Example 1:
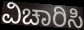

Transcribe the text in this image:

ವಿಚಾರಿಸಿ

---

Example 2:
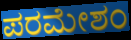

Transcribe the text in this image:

ಪರಮೇಶಂ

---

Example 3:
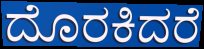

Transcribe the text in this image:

ದೊರಕಿದರೆ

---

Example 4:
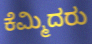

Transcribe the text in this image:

ಕೆಮ್ಮಿದರು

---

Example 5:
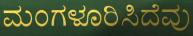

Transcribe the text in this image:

ಮಂಗಳೂರಿಸಿದೆವು